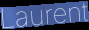
Laurent